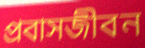
প্রবাসজীবন